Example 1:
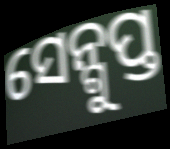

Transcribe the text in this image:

ସେନ୍ଗୁପ୍ତ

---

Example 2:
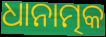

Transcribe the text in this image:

ଧାନାତ୍ମକ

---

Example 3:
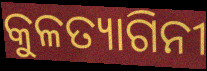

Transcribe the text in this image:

କୁଳତ୍ୟାଗିନୀ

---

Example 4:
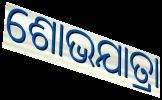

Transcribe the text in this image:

ଶୋଭଯାତ୍ରା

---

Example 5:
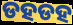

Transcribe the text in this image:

ଡହଡହ